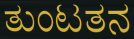
ತುಂಟತನ